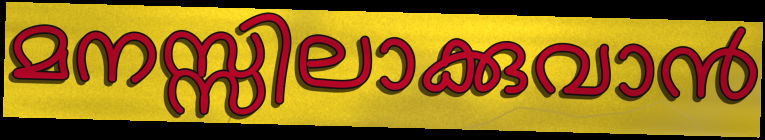
മനസ്സിലാക്കുവാൻ